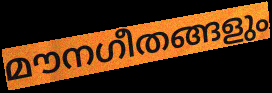
മൗനഗീതങ്ങളും